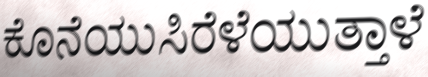
ಕೊನೆಯುಸಿರೆಳೆಯುತ್ತಾಳೆ